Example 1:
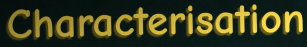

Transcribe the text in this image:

Characterisation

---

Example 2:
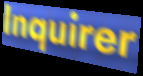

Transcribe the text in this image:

Inquirer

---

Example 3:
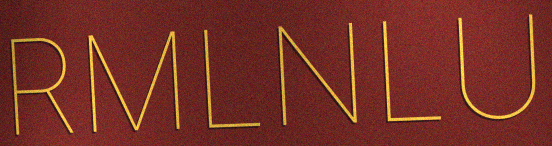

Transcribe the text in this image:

RMLNLU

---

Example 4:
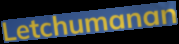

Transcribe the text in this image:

Letchumanan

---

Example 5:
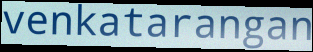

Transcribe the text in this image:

venkatarangan